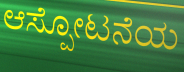
ಆಸ್ಪೋಟನೆಯ